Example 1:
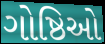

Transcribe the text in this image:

ગોષ્ઠિઓ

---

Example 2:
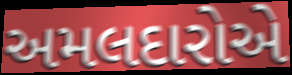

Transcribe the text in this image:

અમલદારોએ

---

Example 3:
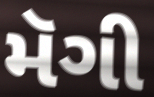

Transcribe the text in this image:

મૅગી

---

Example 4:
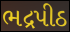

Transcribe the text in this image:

ભદ્રપીઠ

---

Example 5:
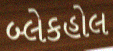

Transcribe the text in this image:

બ્લેકહોલ